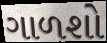
ગાળશો